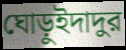
ঘোড়ুইদাদুর